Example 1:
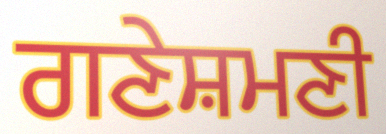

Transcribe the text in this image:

ਗਣੇਸ਼ਮਣੀ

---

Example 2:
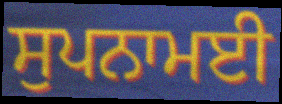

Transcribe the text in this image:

ਸੁਪਨਾਮਈ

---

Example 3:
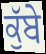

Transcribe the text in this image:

ਕੁੱਬੇ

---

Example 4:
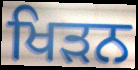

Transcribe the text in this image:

ਖਿੜਨ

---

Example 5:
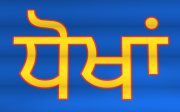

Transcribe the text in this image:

ਧੋਖਾਂ